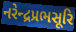
નરેન્દ્રપ્રભસૂરિ